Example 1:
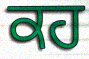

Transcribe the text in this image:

ਕਹ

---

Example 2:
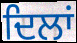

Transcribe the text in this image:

ਦਿਲਾਂ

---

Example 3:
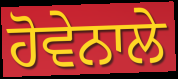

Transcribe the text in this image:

ਹੋਵੇਨਾਲੇ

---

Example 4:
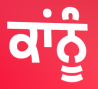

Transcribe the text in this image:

ਕਾਂਨੂੰ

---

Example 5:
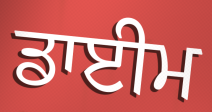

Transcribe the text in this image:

ਡਾਈਮ